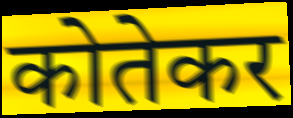
कोतेकर